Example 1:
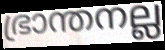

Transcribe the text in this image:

ഭ്രാന്തനല്ല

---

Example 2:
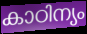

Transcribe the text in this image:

കാഠിന്യം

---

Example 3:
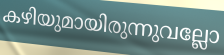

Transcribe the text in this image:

കഴിയുമായിരുന്നുവല്ലോ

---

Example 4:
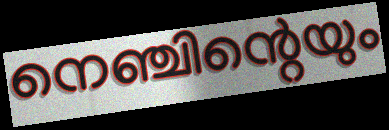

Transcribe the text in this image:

നെഞ്ചിന്റെയും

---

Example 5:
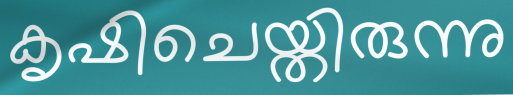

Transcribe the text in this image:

കൃഷിചെയ്തിരുന്നു